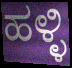
ಹಳ್ಳಿ